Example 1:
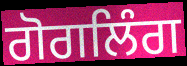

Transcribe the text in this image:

ਗੋਗਲਿੰਗ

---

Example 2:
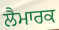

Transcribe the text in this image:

ਲੈਮਾਰਕ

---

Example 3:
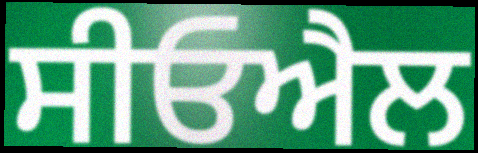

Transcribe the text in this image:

ਸੀਓਐਲ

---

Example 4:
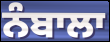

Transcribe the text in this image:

ਨੰਬਾਲਾ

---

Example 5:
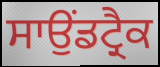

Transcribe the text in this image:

ਸਾਉਂਡਟ੍ਰੈਕ